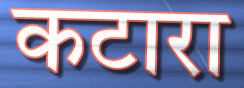
कटारा